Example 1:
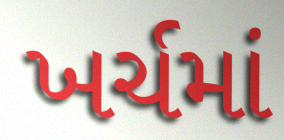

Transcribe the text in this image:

ખર્ચમાં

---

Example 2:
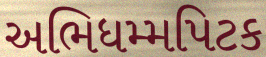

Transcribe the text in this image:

અભિધમ્મપિટક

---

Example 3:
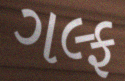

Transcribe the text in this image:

ગલ્ફ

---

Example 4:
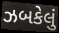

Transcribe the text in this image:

ઝબકેલું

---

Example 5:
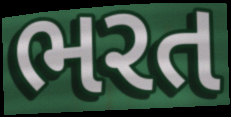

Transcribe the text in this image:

ભરત